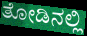
ತೋಡಿನಲ್ಲಿ